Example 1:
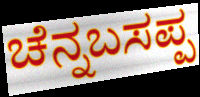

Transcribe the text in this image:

ಚೆನ್ನಬಸಪ್ಪ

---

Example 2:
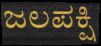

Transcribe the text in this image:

ಜಲಪಕ್ಷಿ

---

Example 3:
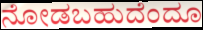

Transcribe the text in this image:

ನೋಡಬಹುದೆಂದೂ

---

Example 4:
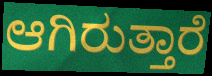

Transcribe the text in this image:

ಆಗಿರುತ್ತಾರೆ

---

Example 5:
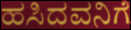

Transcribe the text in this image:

ಹಸಿದವನಿಗೆ